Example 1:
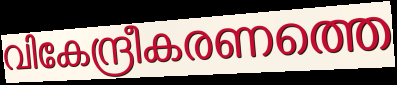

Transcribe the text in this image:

വികേന്ദ്രീകരണത്തെ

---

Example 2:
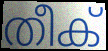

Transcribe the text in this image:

തീക്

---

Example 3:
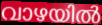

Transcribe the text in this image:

വാഴയിൽ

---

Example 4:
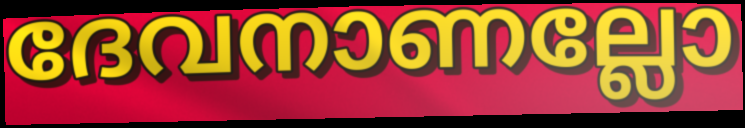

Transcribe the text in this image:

ദേവനാണല്ലോ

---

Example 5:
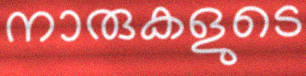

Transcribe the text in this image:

നാരുകളുടെ